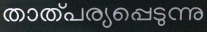
താത്പര്യപ്പെടുന്നു